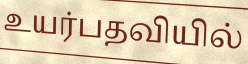
உயர்பதவியில்